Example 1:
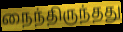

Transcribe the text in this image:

நைந்திருந்தது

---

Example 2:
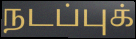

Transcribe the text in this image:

நடப்புக்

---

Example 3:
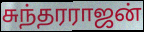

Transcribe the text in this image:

சுந்தரராஜன்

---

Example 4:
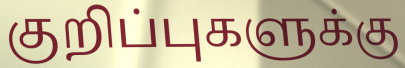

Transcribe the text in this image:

குறிப்புகளுக்கு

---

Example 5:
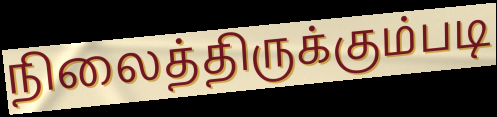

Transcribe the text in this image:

நிலைத்திருக்கும்படி